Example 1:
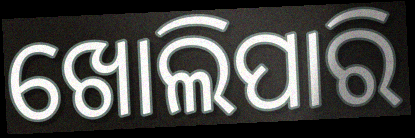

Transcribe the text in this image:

ଖୋଲିପାରି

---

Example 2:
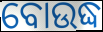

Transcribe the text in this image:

ବୋଉଦ୍ଧ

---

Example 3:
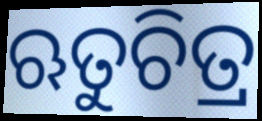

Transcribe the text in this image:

ଋତୁଚିତ୍ର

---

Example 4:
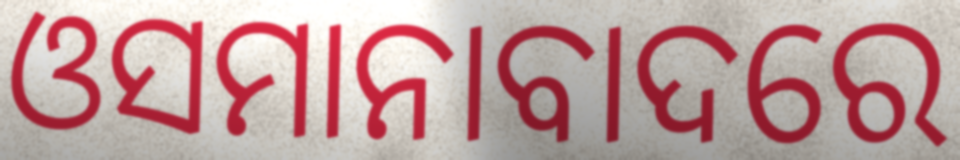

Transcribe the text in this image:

ଓସମାନାବାଦରେ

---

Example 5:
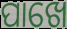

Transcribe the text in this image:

ପାଖେ